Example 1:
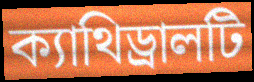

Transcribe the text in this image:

ক্যাথিড্রালটি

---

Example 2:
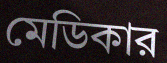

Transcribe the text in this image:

মেডিকার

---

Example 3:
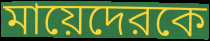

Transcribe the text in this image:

মায়েদেরকে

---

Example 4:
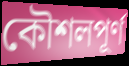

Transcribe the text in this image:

কৌশলপূর্ণ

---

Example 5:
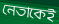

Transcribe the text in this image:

নেতাকেই